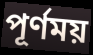
পূর্ণময়